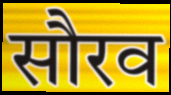
सौरव